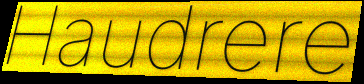
Haudrere